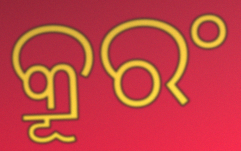
କ୍ରୂରଂ